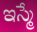
ఇస్మే